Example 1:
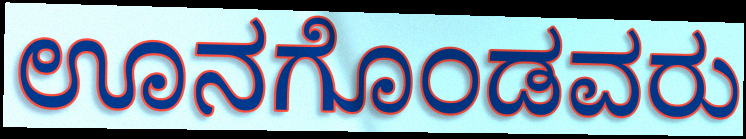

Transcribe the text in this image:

ಊನಗೊಂಡವರು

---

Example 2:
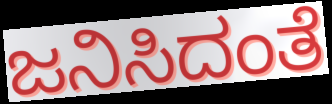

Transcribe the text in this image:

ಜನಿಸಿದಂತೆ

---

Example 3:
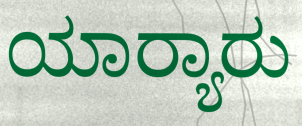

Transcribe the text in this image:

ಯಾರ‍್ಯಾರು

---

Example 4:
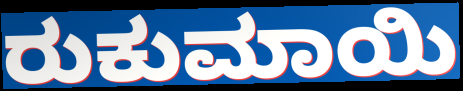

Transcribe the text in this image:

ರುಕುಮಾಯಿ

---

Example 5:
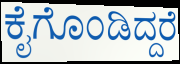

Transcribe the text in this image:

ಕೈಗೊಂಡಿದ್ದರೆ